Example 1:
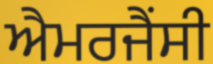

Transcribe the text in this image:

ਐਮਰਜੈਂਸੀ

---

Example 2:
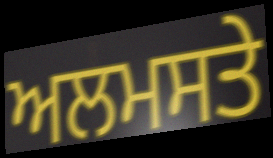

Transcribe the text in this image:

ਅਲਮਸਤੇ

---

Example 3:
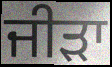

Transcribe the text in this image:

ਜੀੜਾ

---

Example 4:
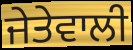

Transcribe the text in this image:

ਜੇਤੇਵਾਲੀ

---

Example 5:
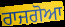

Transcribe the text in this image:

ਰਾਜਗੋਆ